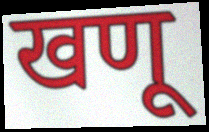
खणू